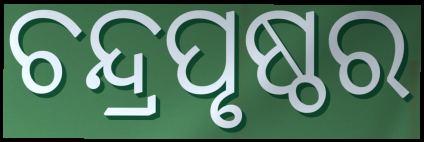
ଚନ୍ଦ୍ରପୃଷ୍ଠର